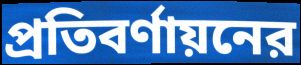
প্রতিবর্ণায়নের